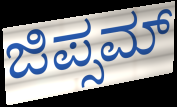
ಜಿಪ್ಸಮ್